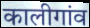
कालीगांव